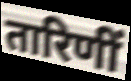
तारिणीं